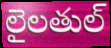
లైలతుల్